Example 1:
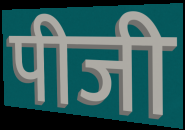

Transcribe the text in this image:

पीजी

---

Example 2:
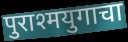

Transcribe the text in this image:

पुराश्मयुगाचा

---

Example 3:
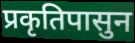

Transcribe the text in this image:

प्रकृतिपासुन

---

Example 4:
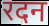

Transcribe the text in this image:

रदन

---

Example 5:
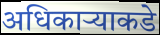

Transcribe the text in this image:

अधिकार्‍याकडे